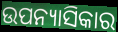
ଉପନ୍ୟାସିକାର